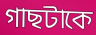
গাছটাকে